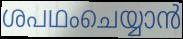
ശപഥംചെയ്യാൻ